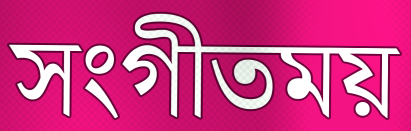
সংগীতময়